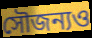
সৌজন্যও